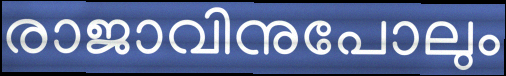
രാജാവിനുപോലും